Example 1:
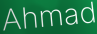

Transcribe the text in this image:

Ahmad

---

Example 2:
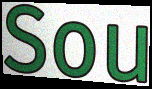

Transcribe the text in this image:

Sou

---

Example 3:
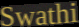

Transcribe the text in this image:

Swathi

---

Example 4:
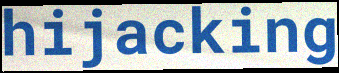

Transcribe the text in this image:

hijacking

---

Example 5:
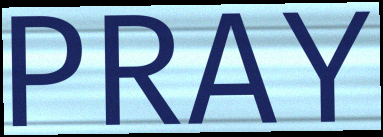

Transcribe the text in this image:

PRAY